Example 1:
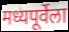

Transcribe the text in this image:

मध्यपूर्वेला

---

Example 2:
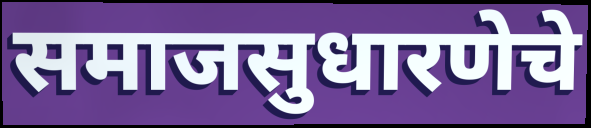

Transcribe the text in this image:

समाजसुधारणेचे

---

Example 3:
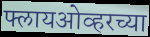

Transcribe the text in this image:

फ्लायओव्हरच्या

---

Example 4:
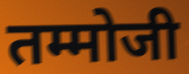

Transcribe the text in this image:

तम्मोजी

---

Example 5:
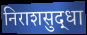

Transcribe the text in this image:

निराशसुद्धा